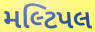
મલ્ટિપલ